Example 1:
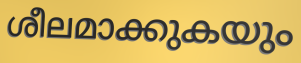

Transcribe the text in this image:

ശീലമാക്കുകയും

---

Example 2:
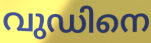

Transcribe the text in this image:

വുഡിനെ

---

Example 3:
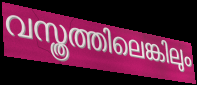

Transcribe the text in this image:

വസ്ത്രത്തിലെങ്കിലും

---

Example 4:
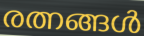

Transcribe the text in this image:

രത്നങ്ങൾ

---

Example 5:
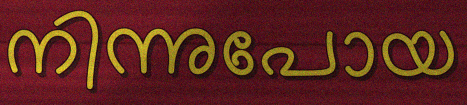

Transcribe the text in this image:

നിന്നുപോയ